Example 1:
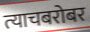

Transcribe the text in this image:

त्‍याचबरोबर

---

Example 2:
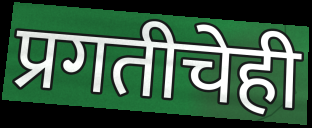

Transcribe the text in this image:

प्रगतीचेही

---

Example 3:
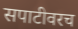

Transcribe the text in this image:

सपाटीवरच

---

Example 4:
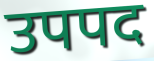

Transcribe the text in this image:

उपपद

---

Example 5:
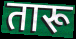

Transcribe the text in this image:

तारू